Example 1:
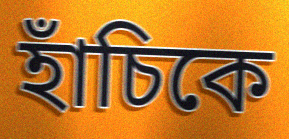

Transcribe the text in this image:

হাঁচিকে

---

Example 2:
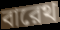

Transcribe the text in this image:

বারেথ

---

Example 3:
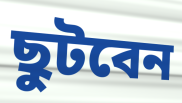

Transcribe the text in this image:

ছুটবেন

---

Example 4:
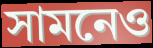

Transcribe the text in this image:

সামনেও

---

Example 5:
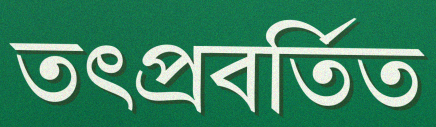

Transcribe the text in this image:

তৎপ্রবর্তিত